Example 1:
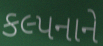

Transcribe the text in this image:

કલ્પનાને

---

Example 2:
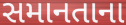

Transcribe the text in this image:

સમાનતાના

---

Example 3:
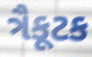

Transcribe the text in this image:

ત્રૈકૂટક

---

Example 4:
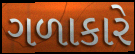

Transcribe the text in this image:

ગળાકારે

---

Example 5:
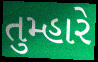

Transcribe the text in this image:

તુમ્હારે